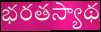
భరతస్యాథ